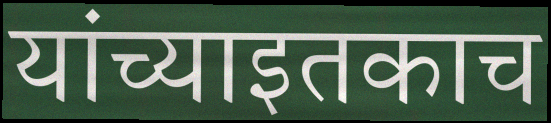
यांच्याइतकाच